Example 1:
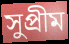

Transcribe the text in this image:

সুপ্ৰীম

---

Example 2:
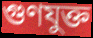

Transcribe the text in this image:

গুণযুক্ত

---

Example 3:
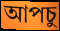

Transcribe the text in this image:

আপচু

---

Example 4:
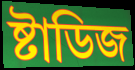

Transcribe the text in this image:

ষ্টাডিজ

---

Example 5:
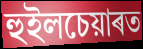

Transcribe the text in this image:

হুইলচেয়াৰত